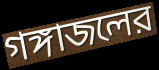
গঙ্গাজলের